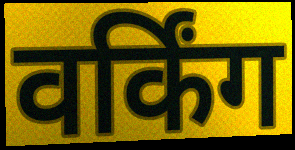
वर्किंग